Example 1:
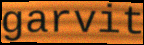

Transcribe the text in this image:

garvit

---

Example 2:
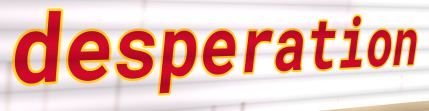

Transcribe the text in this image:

desperation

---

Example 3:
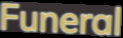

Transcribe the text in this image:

Funeral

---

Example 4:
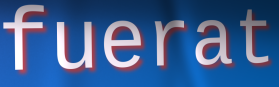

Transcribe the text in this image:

fuerat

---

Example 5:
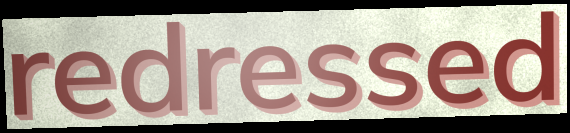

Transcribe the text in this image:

redressed